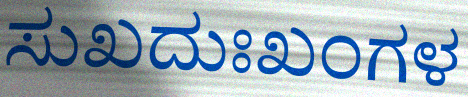
ಸುಖದುಃಖಂಗಳ